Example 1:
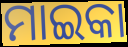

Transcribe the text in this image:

ମାଇକା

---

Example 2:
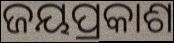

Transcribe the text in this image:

ଜୟପ୍ରକାଶ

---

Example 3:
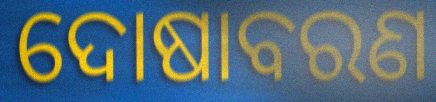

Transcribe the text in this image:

ଦୋଷାବରଣ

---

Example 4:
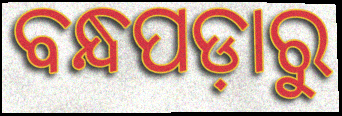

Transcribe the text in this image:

ବନ୍ଧପଡ଼ାରୁ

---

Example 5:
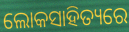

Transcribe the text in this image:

ଲୋକସାହିତ୍ୟରେ